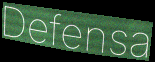
Defensa